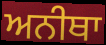
ਅਨੀਥਾ